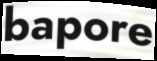
bapore